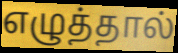
எழுத்தால்